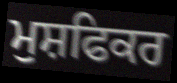
ਮੁਸ਼ਫਿਕਰ